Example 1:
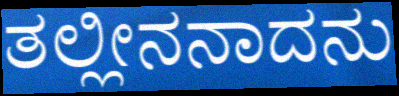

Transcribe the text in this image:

ತಲ್ಲೀನನಾದನು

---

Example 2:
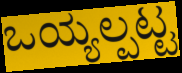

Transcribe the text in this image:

ಒಯ್ಯಲ್ಪಟ್ಟ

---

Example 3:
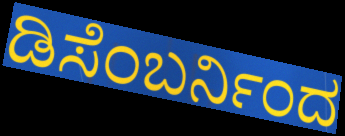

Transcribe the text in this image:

ಡಿಸೆಂಬರ್ನಿಂದ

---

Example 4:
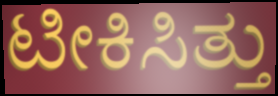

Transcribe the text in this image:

ಟೀಕಿಸಿತ್ತು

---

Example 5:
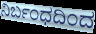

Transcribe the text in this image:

ನಿರ್ಬಂಧದಿಂದ